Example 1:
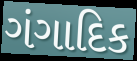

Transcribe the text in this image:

ગંગાદિક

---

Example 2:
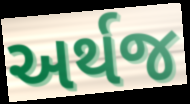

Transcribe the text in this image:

અર્થજ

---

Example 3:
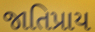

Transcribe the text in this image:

જાતિપ્રાય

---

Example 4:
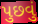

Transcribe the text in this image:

પુછવું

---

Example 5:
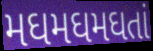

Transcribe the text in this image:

મઘમઘમઘતાં